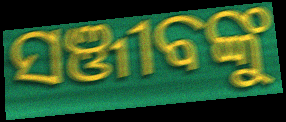
ସଞ୍ଜୀବଙ୍କୁ